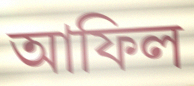
আফিল